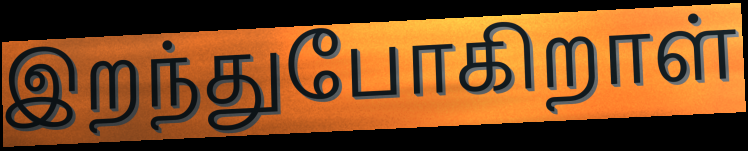
இறந்துபோகிறாள்